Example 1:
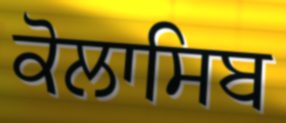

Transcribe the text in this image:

ਕੋਲਾਸਿਬ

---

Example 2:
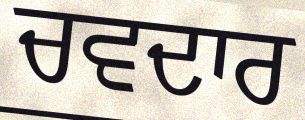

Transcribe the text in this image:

ਚਵਦਾਰ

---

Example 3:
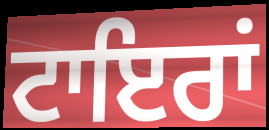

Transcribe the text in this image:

ਟਾਇਰਾਂ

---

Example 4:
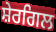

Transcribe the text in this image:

ਸ਼ੇਰਗਿਲ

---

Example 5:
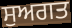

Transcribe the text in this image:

ਸੁਅਗਤ